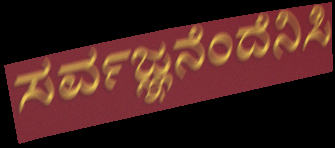
ಸರ್ವಜ್ಞನೆಂದೆನಿಸಿ